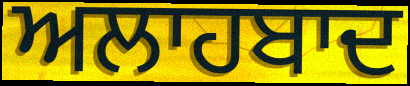
ਅਲਾਹਬਾਦ